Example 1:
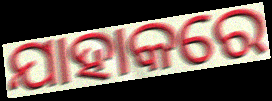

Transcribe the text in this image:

ଯାହାକରେ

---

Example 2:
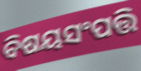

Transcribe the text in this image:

ବିଷୟସଂପତ୍ତି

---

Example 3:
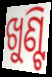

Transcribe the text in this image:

ଖୁଣ୍ଟି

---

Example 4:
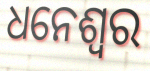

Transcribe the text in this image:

ଧନେଶ୍ବର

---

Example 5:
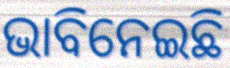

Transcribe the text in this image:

ଭାବିନେଇଛି